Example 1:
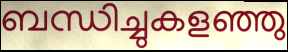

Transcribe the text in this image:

ബന്ധിച്ചുകളഞ്ഞു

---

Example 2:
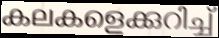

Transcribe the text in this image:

കലകളെക്കുറിച്ച്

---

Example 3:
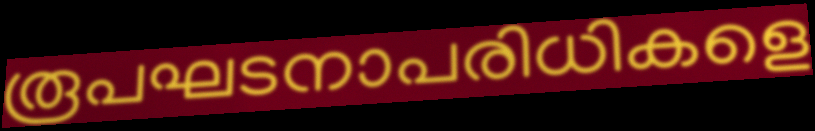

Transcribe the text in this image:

രൂപഘടനാപരിധികളെ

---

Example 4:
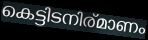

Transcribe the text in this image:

കെട്ടിടനിര്മാണം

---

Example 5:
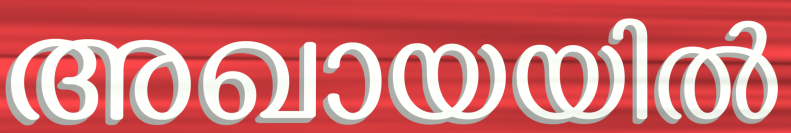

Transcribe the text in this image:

അഖായയിൽ